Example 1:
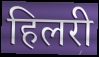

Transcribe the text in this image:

हिलरी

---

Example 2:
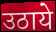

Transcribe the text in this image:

उठाये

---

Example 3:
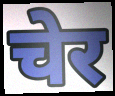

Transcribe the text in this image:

चेर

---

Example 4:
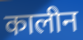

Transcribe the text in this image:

कालीन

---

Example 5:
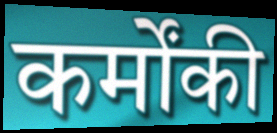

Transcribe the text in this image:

कर्मोंकी